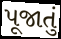
પૂજાતું